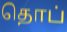
தொப்